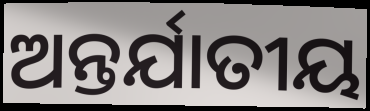
ଅନ୍ତର୍ଯାତୀୟ